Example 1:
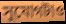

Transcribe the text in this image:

সুযোগটাও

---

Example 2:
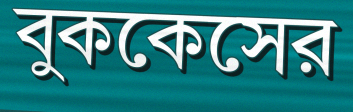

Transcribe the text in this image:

বুককেসের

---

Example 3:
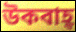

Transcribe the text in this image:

উকবাহ্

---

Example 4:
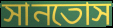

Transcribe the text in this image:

সানতোস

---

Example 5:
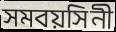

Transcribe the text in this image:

সমবয়সিনী